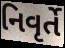
નિવૃર્તે